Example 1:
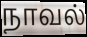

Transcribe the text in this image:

நாவல்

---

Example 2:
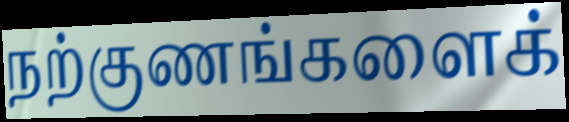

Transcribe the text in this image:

நற்குணங்களைக்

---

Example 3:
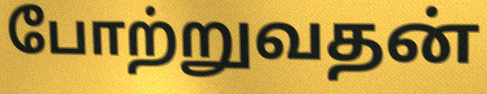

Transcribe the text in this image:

போற்றுவதன்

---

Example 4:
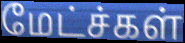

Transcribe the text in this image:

மேட்ச்கள்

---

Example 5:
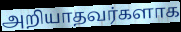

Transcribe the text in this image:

அறியாதவர்களாக